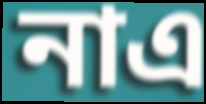
নাএ